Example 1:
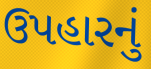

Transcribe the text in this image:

ઉપહારનું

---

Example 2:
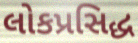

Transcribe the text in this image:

લોકપ્રસિદ્ધ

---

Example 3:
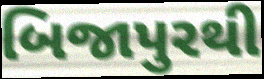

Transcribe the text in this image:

બિજાપુરથી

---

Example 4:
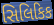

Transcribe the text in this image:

સિલિકિક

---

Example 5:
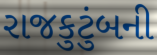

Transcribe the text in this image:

રાજકુટુંબની